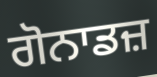
ਗੋਨਾਡਜ਼